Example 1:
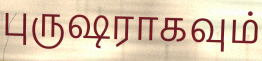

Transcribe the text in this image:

புருஷராகவும்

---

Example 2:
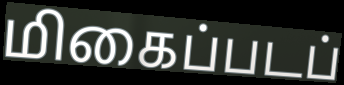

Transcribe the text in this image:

மிகைப்படப்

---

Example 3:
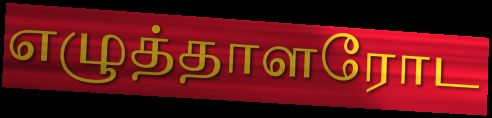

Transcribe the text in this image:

எழுத்தாளரோட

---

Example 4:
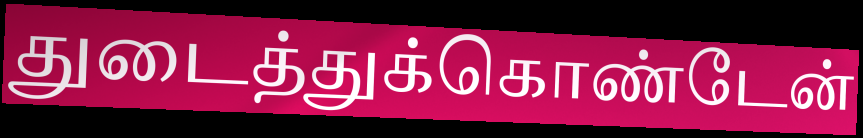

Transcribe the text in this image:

துடைத்துக்கொண்டேன்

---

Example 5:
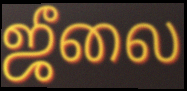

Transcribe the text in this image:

ஜீலை